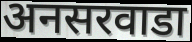
अनसरवाडा